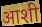
आशी